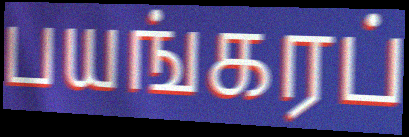
பயங்கரப்